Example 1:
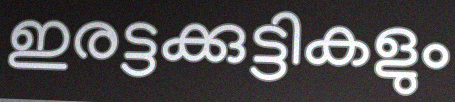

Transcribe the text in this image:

ഇരട്ടക്കുട്ടികളും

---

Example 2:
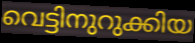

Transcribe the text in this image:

വെട്ടിനുറുക്കിയ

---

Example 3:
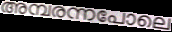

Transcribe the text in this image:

അമ്പരന്നപോലെ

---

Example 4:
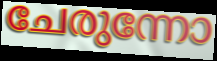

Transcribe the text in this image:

ചേരുന്നോ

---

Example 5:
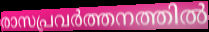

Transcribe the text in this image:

രാസപ്രവർത്തനത്തിൽ